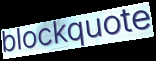
blockquote